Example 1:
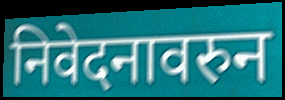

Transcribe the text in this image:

निवेदनावरुन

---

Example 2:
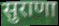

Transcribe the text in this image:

सुराणा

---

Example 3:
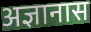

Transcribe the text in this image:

अज्ञानास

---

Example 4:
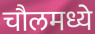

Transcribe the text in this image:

चौलमध्ये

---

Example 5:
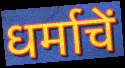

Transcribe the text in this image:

धर्माचें